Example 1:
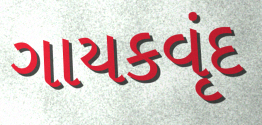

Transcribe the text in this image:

ગાયકવૃંદ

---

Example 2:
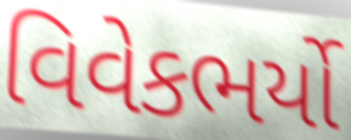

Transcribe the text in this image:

વિવેકભર્યો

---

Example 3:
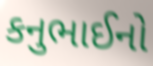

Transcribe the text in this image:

કનુભાઈનો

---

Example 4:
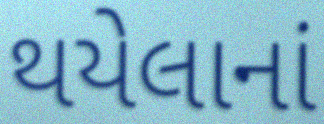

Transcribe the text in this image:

થયેલાનાં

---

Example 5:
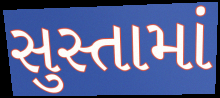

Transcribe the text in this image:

સુસ્તામાં